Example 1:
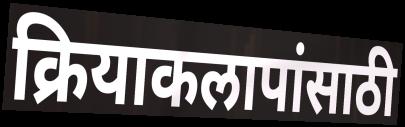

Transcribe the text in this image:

क्रियाकलापांसाठी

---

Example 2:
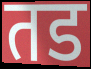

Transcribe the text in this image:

तड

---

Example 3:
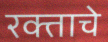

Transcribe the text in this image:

रक्ताचे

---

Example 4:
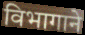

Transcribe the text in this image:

विभागाने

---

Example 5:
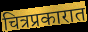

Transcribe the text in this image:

चित्रप्रकारात